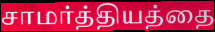
சாமர்த்தியத்தை